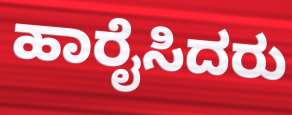
ಹಾರೈಸಿದರು